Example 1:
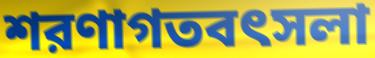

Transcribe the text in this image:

শরণাগতবৎসলা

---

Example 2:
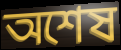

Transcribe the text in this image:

অশেষ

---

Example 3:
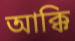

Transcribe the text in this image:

আক্কি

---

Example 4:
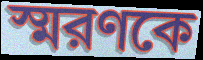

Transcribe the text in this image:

স্মরণকে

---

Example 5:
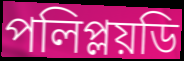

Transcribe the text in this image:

পলিপ্লয়ডি